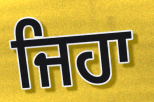
ਜਿਹਾ